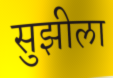
सुझीला